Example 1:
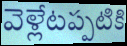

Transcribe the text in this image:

వెళ్లేటప్పటికి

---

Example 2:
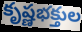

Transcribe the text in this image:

కృష్ణభక్తుల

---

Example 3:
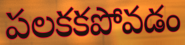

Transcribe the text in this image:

పలకకపోవడం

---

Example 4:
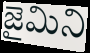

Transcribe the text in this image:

జైమిని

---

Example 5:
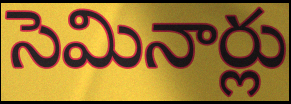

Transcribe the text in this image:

సెమినార్లు